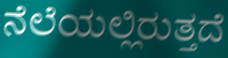
ನೆಲೆಯಲ್ಲಿರುತ್ತದೆ